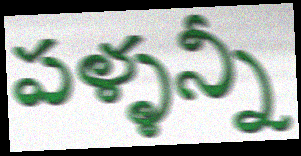
పళ్ళన్నీ